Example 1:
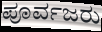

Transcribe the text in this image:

ಪೂರ್ವಜರು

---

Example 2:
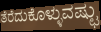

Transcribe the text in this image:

ತೆರೆದುಕೊಳ್ಳುವಷ್ಟು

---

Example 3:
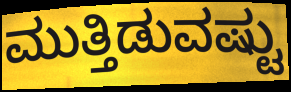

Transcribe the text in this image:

ಮುತ್ತಿಡುವಷ್ಟು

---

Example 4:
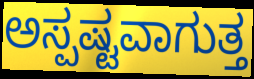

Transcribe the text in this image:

ಅಸ್ಪಷ್ಟವಾಗುತ್ತ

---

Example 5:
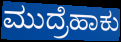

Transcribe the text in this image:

ಮುದ್ರೆಹಾಕು